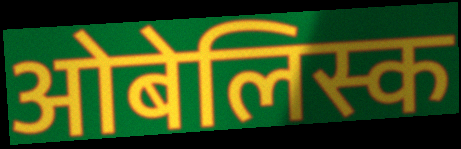
ओबेलिस्क